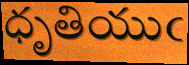
ధృతియుఁ